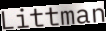
Littman